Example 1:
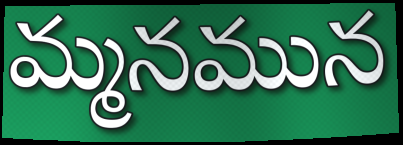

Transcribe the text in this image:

మ్మనమున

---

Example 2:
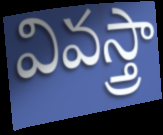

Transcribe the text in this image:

వివస్త్రా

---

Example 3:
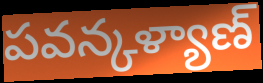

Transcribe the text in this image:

పవన్కళ్యాణ్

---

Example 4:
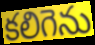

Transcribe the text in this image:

కలిగెను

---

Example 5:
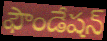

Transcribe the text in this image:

ఫౌండేషన్